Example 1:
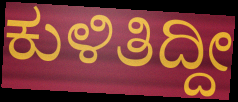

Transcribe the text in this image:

ಕುಳಿತಿದ್ದೀ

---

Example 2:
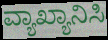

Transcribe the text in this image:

ವ್ಯಾಖ್ಯಾನಿಸಿ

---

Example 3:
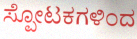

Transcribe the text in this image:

ಸ್ಪೋಟಕಗಳಿಂದ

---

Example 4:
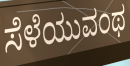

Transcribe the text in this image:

ಸೆಳೆಯುವಂಥ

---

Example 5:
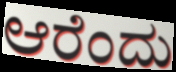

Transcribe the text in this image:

ಆರೆಂದು